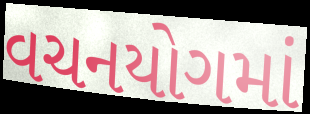
વચનયોગમાં